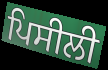
ਪਿਸੀਲੀ